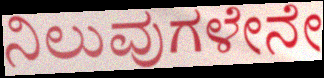
ನಿಲುವುಗಳೇನೇ